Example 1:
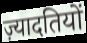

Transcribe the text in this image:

ज़्यादतियों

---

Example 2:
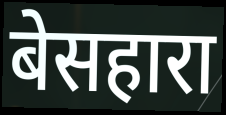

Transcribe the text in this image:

बेसहारा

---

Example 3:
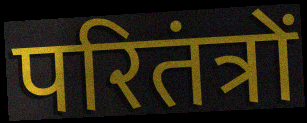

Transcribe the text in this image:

परितंत्रों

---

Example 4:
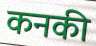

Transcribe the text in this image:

कनकी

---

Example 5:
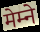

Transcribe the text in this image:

मेम्ने